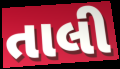
તાલી